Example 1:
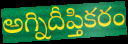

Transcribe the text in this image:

అగ్నిదీప్తికరం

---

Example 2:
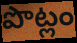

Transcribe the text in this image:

పొట్లం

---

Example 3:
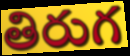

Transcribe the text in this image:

తిరుగ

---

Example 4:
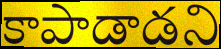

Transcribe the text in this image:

కాపాడాడని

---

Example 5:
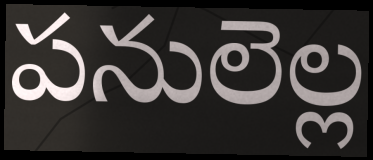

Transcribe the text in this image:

పనులెల్ల